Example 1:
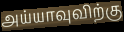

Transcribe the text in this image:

அய்யாவுவிற்கு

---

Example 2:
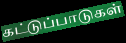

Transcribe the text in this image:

கட்டுப்பாடுகள்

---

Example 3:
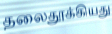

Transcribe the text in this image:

தலைதூக்கியது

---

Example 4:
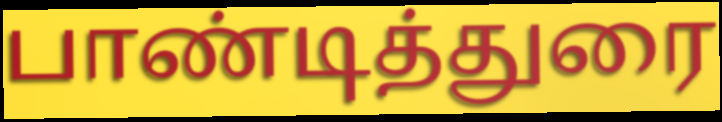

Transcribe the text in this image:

பாண்டித்துரை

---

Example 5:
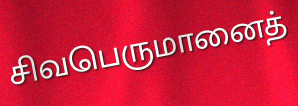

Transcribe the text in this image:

சிவபெருமானைத்